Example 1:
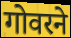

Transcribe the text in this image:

गोवरने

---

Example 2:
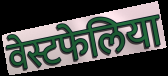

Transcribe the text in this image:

वेस्टफेलिया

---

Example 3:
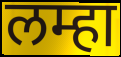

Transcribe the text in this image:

लम्हा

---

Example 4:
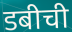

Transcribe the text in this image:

डबीची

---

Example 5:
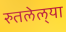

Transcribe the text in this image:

रुतलेल्या